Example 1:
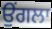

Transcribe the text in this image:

ਉਂਗਲਾ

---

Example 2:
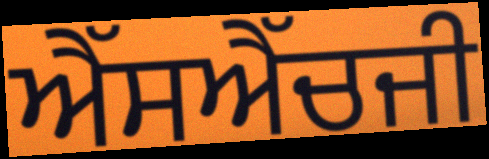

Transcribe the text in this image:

ਐੱਸਐੱਚਜੀ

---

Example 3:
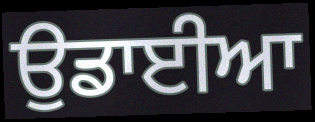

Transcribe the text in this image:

ਉਡਾਈਆ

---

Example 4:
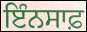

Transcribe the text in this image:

ਇੰਨਸਾਫ਼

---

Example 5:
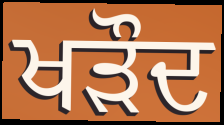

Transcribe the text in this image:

ਖੜੌਦ